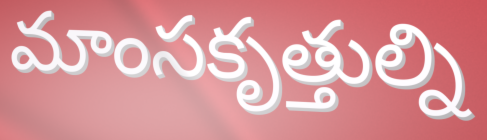
మాంసకృత్తుల్ని